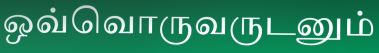
ஒவ்வொருவருடனும்